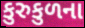
કુરુકુળના